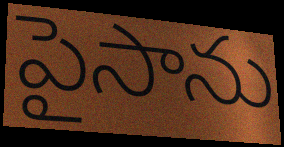
పైసాను